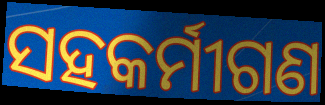
ସହକର୍ମୀଗଣ